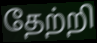
தேற்றி